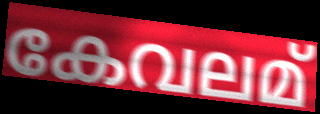
കേവലമ്